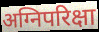
अग्निपरिक्षा